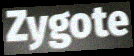
Zygote